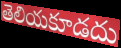
తెలియకూడదు